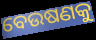
ବେଉଷଣକୁ